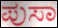
ಪುಸಾ